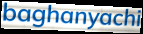
baghanyachi